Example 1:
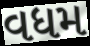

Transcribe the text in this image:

વધમ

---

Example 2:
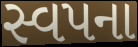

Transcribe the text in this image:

સ્વપના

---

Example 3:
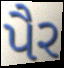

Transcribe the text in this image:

પૈર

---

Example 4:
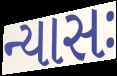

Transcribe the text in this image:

ન્યાસઃ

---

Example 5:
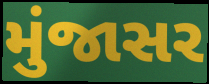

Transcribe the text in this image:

મુંજાસર